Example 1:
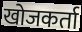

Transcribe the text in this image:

खोजकर्ता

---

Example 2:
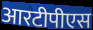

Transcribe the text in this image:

आरटीपीएस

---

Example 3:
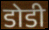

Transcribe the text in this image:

डोडी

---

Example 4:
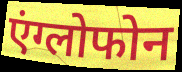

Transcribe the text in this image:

एंग्लोफोन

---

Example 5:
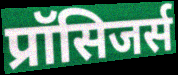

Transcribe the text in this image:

प्रॉसिजर्स